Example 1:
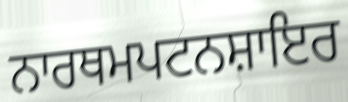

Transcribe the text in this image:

ਨਾਰਥਮਪਟਨਸ਼ਾਇਰ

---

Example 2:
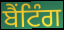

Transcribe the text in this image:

ਬੈਂਟਿੰਗ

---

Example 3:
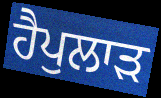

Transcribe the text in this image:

ਹੈਪੁਲਾੜ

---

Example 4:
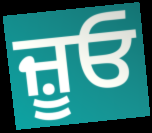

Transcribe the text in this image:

ਜ਼ੂਓ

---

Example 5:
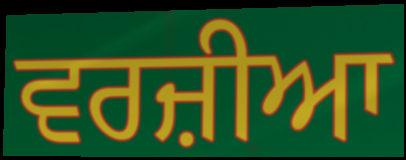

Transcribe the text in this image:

ਵਰਜ਼ੀਆ